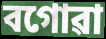
বগোৱা